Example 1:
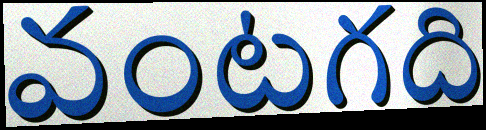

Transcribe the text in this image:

వంటగది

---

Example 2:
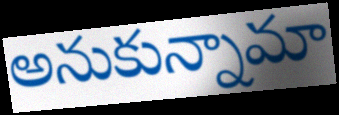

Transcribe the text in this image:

అనుకున్నామా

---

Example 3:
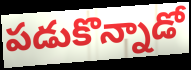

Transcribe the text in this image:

పడుకొన్నాడో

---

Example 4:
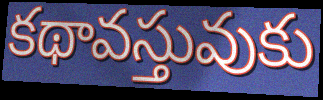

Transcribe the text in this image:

కథావస్తువుకు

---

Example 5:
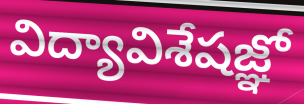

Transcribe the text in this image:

విద్యావిశేషజ్ఞో